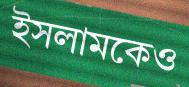
ইসলামকেও